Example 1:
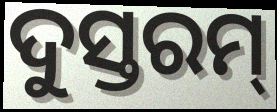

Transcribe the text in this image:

ଦୁସ୍ତରମ୍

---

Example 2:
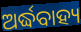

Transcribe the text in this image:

ଅର୍ଦ୍ଧବାହ୍ୟ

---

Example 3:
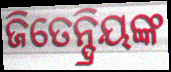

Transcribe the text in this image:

ଜିତେନ୍ଦ୍ରିୟଙ୍କ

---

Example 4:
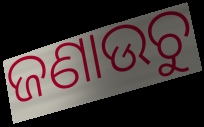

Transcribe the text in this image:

ଜଣାଉଚୁ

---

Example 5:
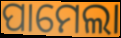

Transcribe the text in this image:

ପାମେଲା